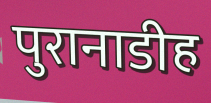
पुरानाडीह